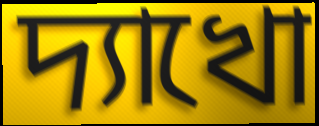
দ্যাখো